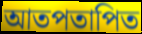
আতপতাপিত